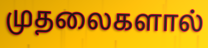
முதலைகளால்